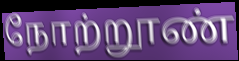
நோற்றூண்